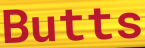
Butts